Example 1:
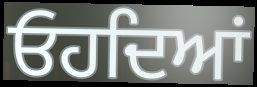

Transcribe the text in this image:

ਓਹਦਿਆਂ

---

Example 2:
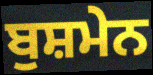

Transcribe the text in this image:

ਬੁਸ਼ਮੇਨ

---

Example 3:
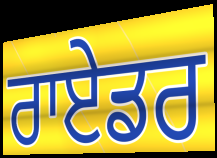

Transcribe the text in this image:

ਰਾਏਡਰ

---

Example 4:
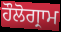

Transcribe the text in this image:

ਹੌਲੋਗ੍ਰਾਮ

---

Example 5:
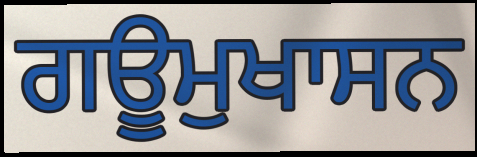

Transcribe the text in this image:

ਗਊਮੁਖਾਸਨ